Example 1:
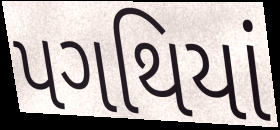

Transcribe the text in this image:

પગથિયાં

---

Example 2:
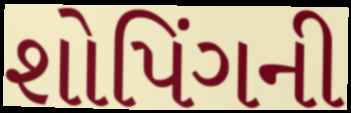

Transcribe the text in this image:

શોપિંગની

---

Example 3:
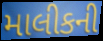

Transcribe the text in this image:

માલીકની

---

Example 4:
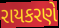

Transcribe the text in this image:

રાયકરણે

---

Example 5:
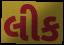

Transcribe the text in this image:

લીક